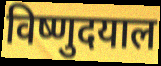
विष्णुदयाल